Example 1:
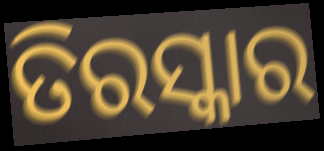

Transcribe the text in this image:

ତିରସ୍କାର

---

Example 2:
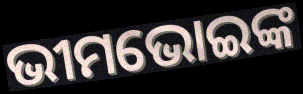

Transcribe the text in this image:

ଭୀମଭୋଇଙ୍କ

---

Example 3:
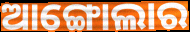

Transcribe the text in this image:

ଆଙ୍ଗୋଲାର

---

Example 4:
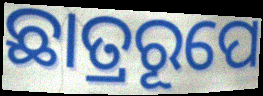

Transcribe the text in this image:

ଛାତ୍ରରୂପେ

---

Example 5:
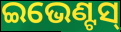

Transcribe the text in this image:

ଇଭେଣ୍ଟସ୍